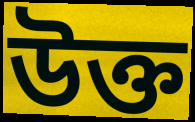
উক্ত